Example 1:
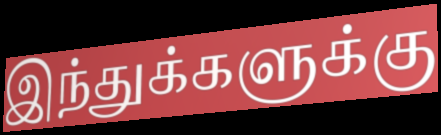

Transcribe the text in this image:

இந்துக்களுக்கு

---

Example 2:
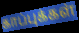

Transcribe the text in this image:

காப்புக்கள்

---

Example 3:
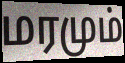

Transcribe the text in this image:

மரமும்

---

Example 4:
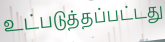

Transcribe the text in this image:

உட்படுத்தப்பட்டது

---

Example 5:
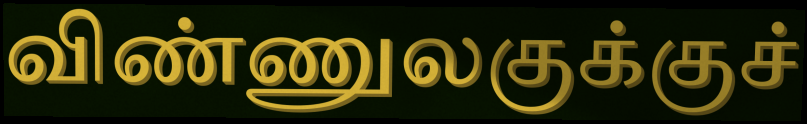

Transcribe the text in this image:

விண்ணுலகுக்குச்